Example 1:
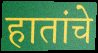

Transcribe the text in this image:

हातांचे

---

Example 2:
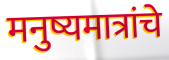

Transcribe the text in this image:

मनुष्यमात्रांचे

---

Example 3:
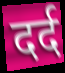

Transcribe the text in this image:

दर्द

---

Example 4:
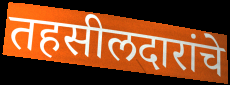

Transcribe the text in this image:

तहसीलदारांचे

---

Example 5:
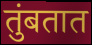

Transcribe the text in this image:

तुंबतात